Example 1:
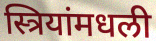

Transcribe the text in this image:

स्त्रियांमधली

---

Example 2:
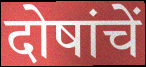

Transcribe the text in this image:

दोषांचें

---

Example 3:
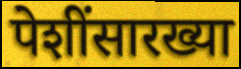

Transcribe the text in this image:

पेशींसारख्या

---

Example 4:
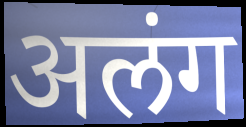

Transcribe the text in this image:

अलंग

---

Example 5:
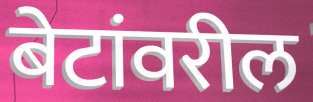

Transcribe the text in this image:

बेटांवरील